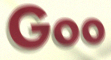
Goo